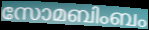
സോമബിംബം